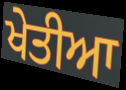
ਖੇਤੀਆ